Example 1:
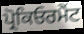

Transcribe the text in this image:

ਪ੍ਰੋਕਿਓਰਮੈਂਟ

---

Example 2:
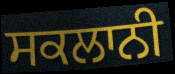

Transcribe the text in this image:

ਸਕਲਾਨੀ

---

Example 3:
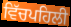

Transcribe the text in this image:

ਵਿੱਚਪਹਿਲੀ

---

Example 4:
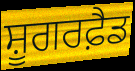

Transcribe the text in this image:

ਸ਼ੂਗਰਫ਼ੈਡ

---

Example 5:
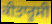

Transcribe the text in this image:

ਕੀਤਾਰੂਸੀ